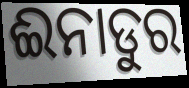
ଈନାଡୁର